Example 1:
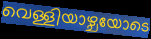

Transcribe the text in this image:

വെള്ളിയാഴ്ചയോടെ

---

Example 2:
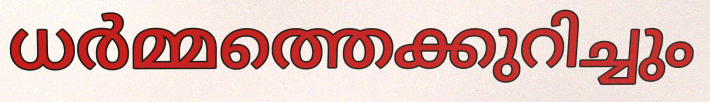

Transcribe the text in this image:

ധർമ്മത്തെക്കുറിച്ചും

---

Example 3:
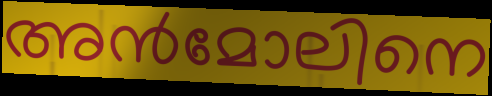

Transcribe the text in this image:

അൻമോലിനെ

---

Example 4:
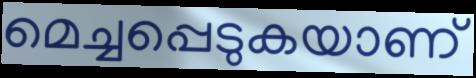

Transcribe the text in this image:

മെച്ചപ്പെടുകയാണ്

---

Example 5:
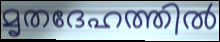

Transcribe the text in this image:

മൃതദേഹത്തിൽ